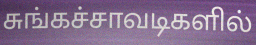
சுங்கச்சாவடிகளில்